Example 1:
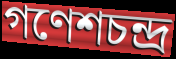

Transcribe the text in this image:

গণেশচন্দ্র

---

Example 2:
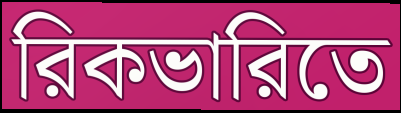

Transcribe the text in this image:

রিকভারিতে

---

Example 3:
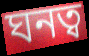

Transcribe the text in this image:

ঘনত্ব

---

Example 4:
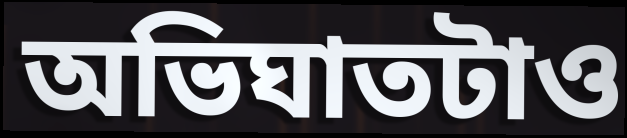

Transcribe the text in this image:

অভিঘাতটাও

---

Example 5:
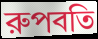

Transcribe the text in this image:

রুপবতি